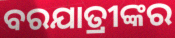
ବରଯାତ୍ରୀଙ୍କର